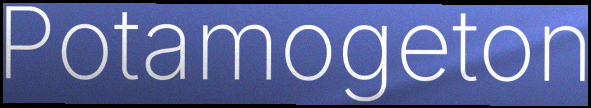
Potamogeton